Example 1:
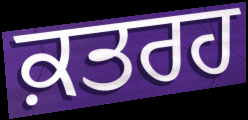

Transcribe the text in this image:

ਕ਼ਤਰਹ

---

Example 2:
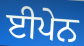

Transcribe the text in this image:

ਈਪੇਨ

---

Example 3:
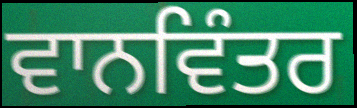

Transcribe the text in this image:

ਵਾਨਵਿੰਤਰ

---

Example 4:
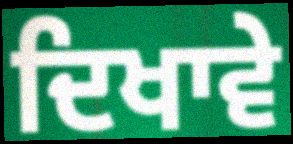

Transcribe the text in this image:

ਦਿਖਾਵੇ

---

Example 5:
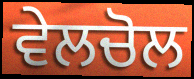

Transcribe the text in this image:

ਵੇਲਚੋਲ